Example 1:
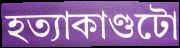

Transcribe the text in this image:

হত্যাকাণ্ডটো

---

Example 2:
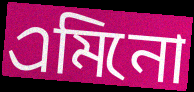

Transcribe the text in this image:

এমিনো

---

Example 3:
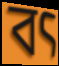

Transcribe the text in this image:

বৎ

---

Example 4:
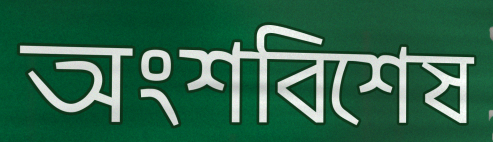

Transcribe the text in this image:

অংশবিশেষ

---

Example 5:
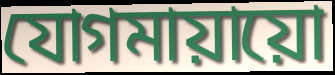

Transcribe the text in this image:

যোগমায়ায়ো